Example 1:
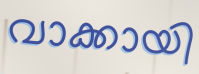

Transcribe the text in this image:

വാക്കായി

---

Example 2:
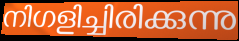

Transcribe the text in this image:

നിഗളിച്ചിരിക്കുന്നു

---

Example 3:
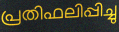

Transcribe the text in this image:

പ്രതിഫലിപ്പിച്ചു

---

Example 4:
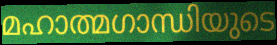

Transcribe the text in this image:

മഹാത്മഗാന്ധിയുടെ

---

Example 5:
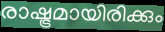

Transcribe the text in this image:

രാഷ്ട്രമായിരിക്കും